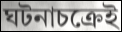
ঘটনাচক্রেই